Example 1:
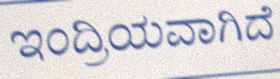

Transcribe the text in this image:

ಇಂದ್ರಿಯವಾಗಿದೆ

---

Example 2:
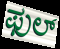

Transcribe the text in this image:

ಫುಲ್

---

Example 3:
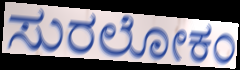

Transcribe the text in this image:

ಸುರಲೋಕಂ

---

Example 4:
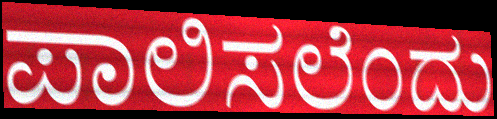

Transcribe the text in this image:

ಪಾಲಿಸಲೆಂದು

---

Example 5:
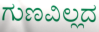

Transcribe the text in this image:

ಗುಣವಿಲ್ಲದ